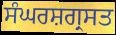
ਸੰਘਰਸ਼ਗ੍ਰਸਤ